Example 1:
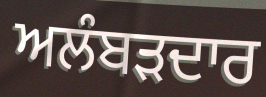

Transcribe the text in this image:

ਅਲੰਬੜਦਾਰ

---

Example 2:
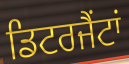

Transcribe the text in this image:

ਡਿਟਰਜੈਂਟਾਂ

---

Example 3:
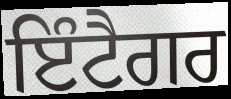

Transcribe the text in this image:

ਇੰਟੈਗਰ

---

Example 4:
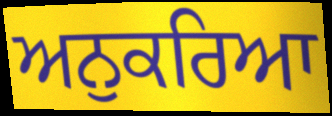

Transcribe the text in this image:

ਅਨੁਕਰਿਆ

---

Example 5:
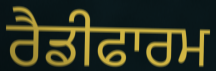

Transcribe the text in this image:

ਰੈਡੀਫਾਰਮ